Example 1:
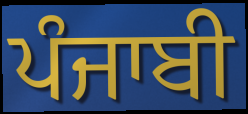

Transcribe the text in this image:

ਪੰਜਾਬੀ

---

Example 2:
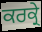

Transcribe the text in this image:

ਕਰਕ੍ਰੇ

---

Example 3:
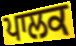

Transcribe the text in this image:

ਪਾਲਕ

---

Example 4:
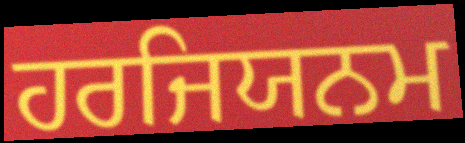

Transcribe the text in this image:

ਹਰਜਿਯਨਮ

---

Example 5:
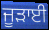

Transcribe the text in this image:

ਜੂੜਾਈ